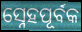
ସ୍ନେହପୂର୍ବକ